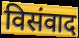
विसंवाद